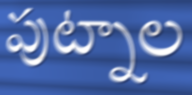
పుట్నాల